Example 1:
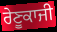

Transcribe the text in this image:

ਰੇਣੂਕਾਜੀ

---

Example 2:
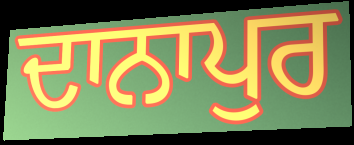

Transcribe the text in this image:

ਦਾਨਾਪੁਰ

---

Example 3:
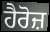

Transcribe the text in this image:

ਹੈਰੋਜ਼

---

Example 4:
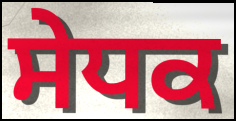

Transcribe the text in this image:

ਸੇਧਕ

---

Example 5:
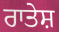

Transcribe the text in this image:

ਰਾਤੇਸ਼